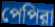
পেপিরা